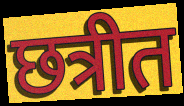
छत्रीत